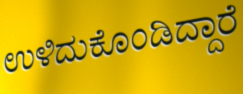
ಉಳಿದುಕೊಂಡಿದ್ದಾರೆ